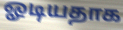
ஓடியதாக